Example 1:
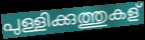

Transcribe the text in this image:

പുള്ളിക്കുത്തുകള്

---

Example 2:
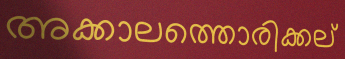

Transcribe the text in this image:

അക്കാലത്തൊരിക്കല്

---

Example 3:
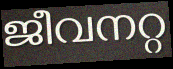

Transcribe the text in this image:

ജീവനറ്റ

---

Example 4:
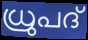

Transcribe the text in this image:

ധ്രുപദ്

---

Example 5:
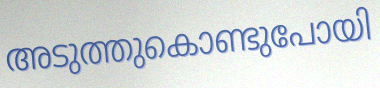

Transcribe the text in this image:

അടുത്തുകൊണ്ടുപോയി